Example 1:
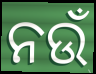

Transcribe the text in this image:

ନଉଁ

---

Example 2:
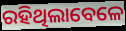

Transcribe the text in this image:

ରହିଥିଲାବେଳେ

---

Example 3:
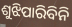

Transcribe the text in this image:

ଶୁଝିପାରିବିନି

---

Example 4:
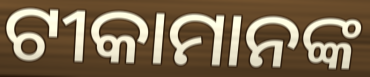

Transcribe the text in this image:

ଟୀକାମାନଙ୍କ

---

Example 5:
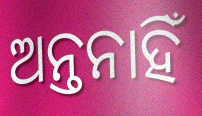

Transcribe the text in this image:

ଅନ୍ତନାହିଁ